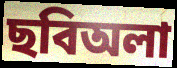
ছবিঅলা